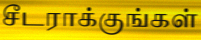
சீடராக்குங்கள்